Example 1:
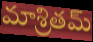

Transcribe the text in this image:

మాశ్రితమ్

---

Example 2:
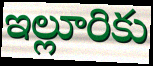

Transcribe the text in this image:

ఇల్లూరికు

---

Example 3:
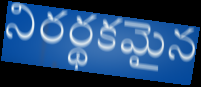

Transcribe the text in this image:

నిరర్థకమైన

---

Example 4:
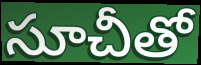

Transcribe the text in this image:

సూచీతో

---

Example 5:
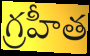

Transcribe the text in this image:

గ్రహీత